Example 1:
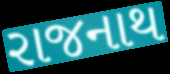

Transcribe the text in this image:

રાજનાથ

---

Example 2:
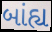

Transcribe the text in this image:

બાંહ્ય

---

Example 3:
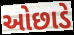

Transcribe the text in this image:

ઓછાડે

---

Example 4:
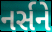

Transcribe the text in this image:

નર્સને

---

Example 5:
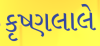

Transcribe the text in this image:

કૃષ્ણલાલે